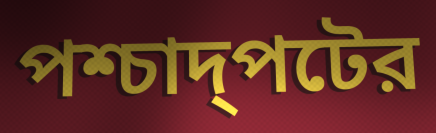
পশ্চাদ্পটের